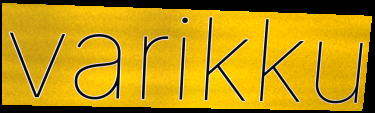
varikku